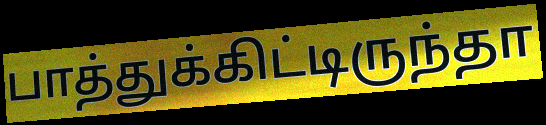
பாத்துக்கிட்டிருந்தா